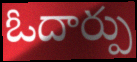
ఓదార్పు